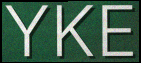
YKE